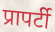
प्रापर्टी